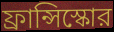
ফ্রান্সিস্কোর